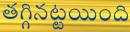
తగ్గినట్టయింది